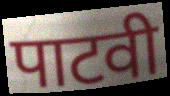
पाटवी